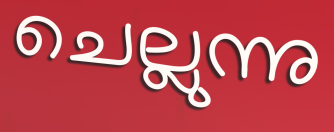
ചെല്ലുന്നു